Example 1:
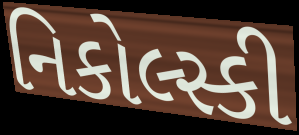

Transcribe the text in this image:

નિકોલ્સ્કી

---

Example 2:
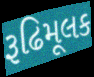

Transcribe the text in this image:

રૂઢિમૂલક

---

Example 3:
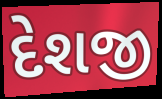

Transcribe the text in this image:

દેશજી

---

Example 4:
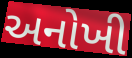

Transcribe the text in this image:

અનોખી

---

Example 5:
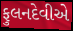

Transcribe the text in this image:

ફુલનદેવીએ